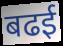
बढई